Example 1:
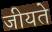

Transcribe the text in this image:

जीयते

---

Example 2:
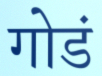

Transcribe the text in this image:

गोडं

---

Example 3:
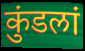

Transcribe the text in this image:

कुंडलां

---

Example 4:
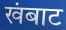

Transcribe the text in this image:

खंबाट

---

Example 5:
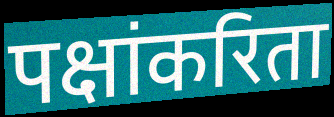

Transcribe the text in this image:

पक्षांकरिता